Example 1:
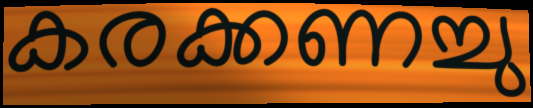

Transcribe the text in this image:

കരക്കണച്ചു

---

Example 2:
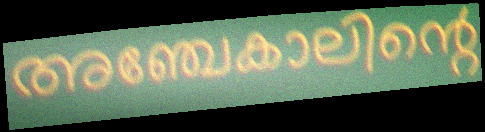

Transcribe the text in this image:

അഞ്ചേകാലിന്റെ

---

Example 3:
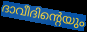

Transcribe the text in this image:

ദാവീദിന്റെയും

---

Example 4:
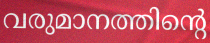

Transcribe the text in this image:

വരുമാനത്തിന്റെ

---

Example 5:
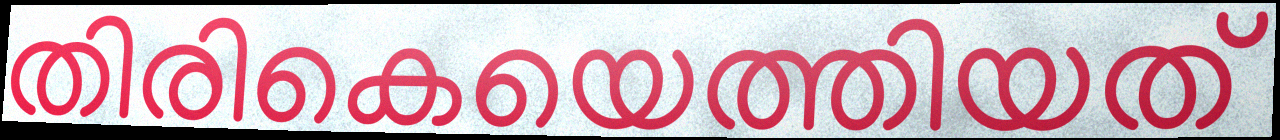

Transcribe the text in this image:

തിരികെയെത്തിയത്